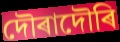
দৌৰাদৌৰি